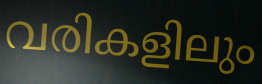
വരികളിലും